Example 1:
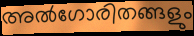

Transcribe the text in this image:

അൽഗോരിതങ്ങളും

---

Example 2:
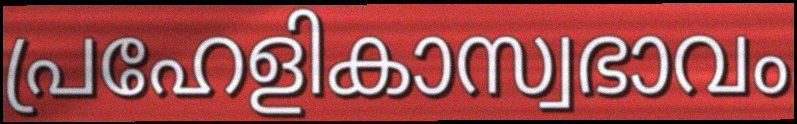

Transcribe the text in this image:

പ്രഹേളികാസ്വഭാവം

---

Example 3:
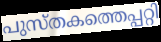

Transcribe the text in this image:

പുസ്തകത്തെപ്പറ്റി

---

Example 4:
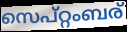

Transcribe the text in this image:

സെപ്റ്റംബര്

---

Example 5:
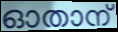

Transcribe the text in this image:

ഓതാന്